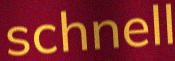
schnell